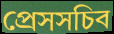
প্রেসসচিব